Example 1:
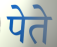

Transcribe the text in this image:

पेते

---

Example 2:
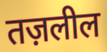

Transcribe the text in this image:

तज़लील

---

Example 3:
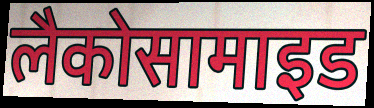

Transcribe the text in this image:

लैकोसामाइड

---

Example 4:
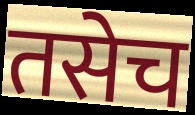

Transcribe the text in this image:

तसेच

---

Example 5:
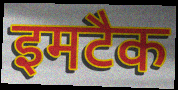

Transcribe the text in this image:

इमटैक